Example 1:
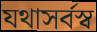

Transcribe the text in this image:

যথাসর্বস্ব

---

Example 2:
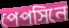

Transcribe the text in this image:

পেপসিনে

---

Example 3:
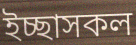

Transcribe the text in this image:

ইচ্ছাসকল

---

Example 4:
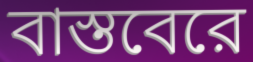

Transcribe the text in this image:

বাস্তবেরে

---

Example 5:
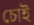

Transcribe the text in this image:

চোই